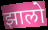
झालो